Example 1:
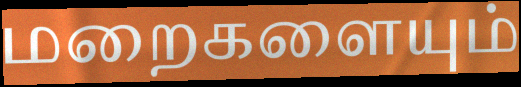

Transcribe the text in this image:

மறைகளையும்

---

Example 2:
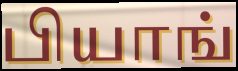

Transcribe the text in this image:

பியாங்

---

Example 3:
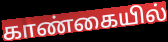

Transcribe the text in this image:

காண்கையில்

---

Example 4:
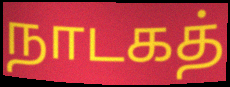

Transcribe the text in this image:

நாடகத்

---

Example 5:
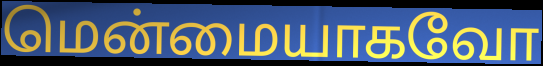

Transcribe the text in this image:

மென்மையாகவோ